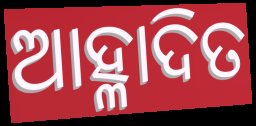
ଆହ୍ଳାଦିତ